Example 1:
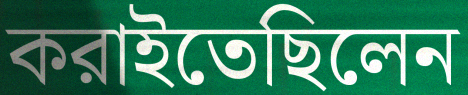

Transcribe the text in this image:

করাইতেছিলেন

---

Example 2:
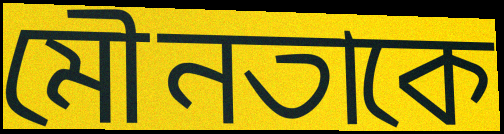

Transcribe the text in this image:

মৌনতাকে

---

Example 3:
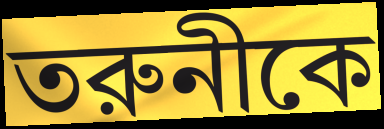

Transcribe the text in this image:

তরুনীকে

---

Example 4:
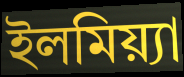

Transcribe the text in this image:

ইলমিয়্যা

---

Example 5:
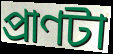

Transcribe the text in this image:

প্রাণটা